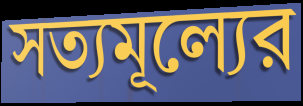
সত্যমূল্যের